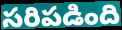
సరిపడింది